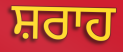
ਸ਼ਰਾਹ